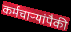
कर्मचाऱ्यांपैकी